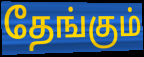
தேங்கும்